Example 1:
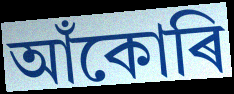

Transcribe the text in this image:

আঁকোৰি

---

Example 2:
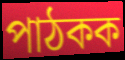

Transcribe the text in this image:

পাঠকক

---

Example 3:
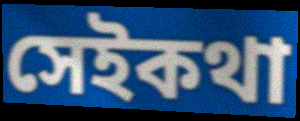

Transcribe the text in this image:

সেইকথা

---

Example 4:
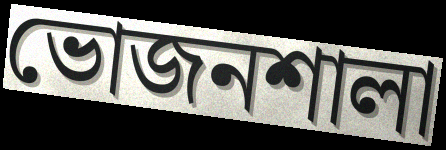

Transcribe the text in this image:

ভোজনশালা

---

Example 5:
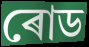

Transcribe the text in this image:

ৰোড